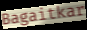
Bagaitkar